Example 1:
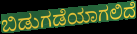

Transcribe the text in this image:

ಬಿಡುಗಡೆಯಾಗಲಿದೆ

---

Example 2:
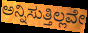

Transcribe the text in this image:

ಅನ್ನಿಸುತ್ತಿಲ್ಲವೇ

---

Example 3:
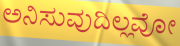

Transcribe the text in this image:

ಅನಿಸುವುದಿಲ್ಲವೋ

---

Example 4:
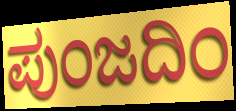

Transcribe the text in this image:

ಪುಂಜದಿಂ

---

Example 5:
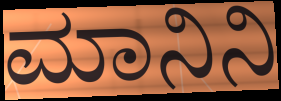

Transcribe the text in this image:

ಮಾನಿನಿ